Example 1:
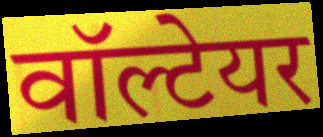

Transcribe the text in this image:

वॉल्टेयर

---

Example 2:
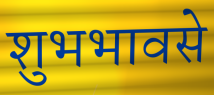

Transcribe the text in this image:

शुभभावसे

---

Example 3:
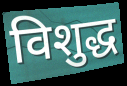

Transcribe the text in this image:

विशुद्ध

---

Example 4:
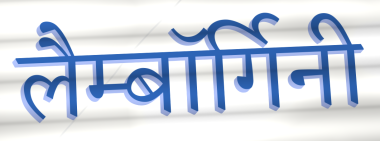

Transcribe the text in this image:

लैम्बॉर्गिनी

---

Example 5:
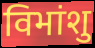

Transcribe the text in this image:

विभांशु